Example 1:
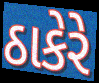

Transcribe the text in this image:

ઠાકેરે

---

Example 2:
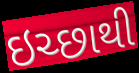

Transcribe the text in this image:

ઇચ્છાથી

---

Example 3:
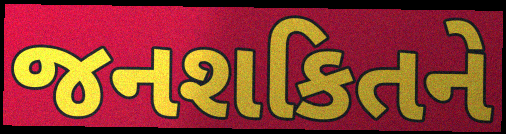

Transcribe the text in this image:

જનશકિતને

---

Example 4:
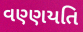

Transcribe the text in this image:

વણ્ણયતિ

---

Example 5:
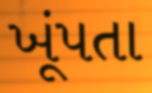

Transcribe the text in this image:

ખૂંપતા